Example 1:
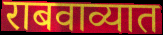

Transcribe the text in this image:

राबवाव्यात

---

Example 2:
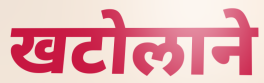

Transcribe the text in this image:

खटोलाने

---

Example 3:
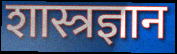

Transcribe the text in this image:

शास्त्रज्ञान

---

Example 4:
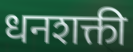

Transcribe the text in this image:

धनशक्ती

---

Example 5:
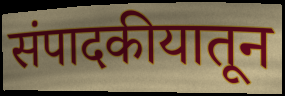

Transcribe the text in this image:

संपादकीयातून